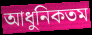
আধুনিকতম